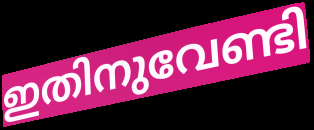
ഇതിനുവേണ്ടി